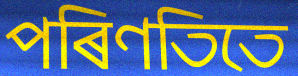
পৰিণতিতে